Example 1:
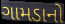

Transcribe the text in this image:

ગામડાનો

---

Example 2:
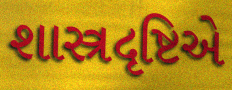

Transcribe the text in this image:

શાસ્ત્રદૃષ્ટિએ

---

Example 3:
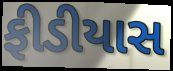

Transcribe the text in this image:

ફીડીયાસ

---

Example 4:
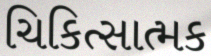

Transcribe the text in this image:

ચિકિત્સાત્મક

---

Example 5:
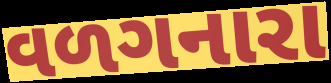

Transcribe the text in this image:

વળગનારા